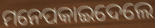
ମନେପକାଇଦେଲେ